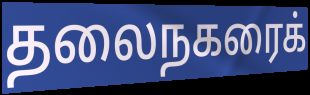
தலைநகரைக்